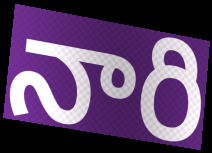
నారి